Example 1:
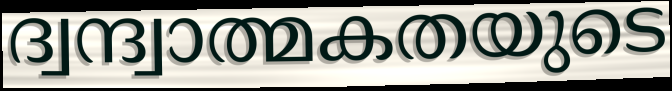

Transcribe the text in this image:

ദ്വന്ദ്വാത്മകതയുടെ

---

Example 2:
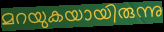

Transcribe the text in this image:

മറയുകയായിരുന്നു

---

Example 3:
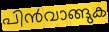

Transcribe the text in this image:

പിൻവാങ്ങുക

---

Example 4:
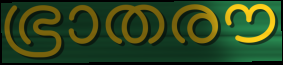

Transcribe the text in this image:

ഭ്രാതരൗ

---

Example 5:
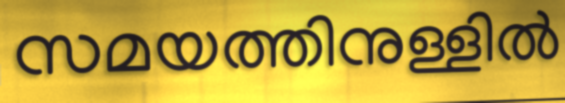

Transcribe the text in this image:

സമയത്തിനുള്ളിൽ